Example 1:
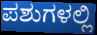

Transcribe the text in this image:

ಪಶುಗಳಲ್ಲಿ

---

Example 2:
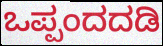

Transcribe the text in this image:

ಒಪ್ಪಂದದಡಿ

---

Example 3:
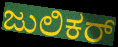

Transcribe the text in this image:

ಜುಲಿಕರ್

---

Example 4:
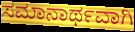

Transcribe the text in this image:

ಸಮಾನಾರ್ಥವಾಗಿ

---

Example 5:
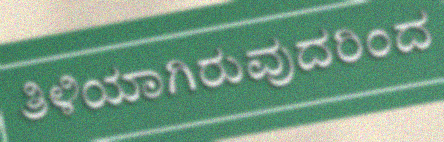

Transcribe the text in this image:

ತಿಳಿಯಾಗಿರುವುದರಿಂದ